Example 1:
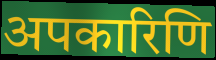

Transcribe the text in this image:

अपकारिणि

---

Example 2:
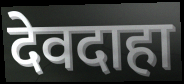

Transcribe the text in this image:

देवदाहा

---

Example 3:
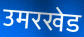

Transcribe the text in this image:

उमरखेड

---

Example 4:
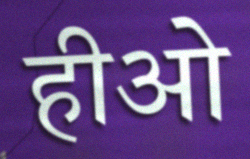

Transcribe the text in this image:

हीओ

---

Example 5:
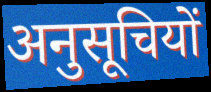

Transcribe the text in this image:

अनुसूचियों